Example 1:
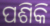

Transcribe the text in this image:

ପଶିକି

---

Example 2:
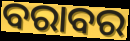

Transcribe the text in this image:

ବରାବର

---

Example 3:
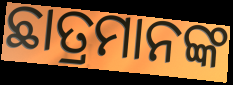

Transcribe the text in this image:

ଛାତ୍ରମାନଙ୍କ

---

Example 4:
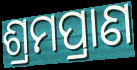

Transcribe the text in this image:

ଶ୍ରମପ୍ରାଣ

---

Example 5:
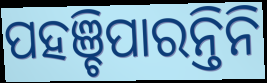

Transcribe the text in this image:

ପହଞ୍ଚିପାରନ୍ତିନି